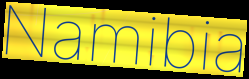
Namibia